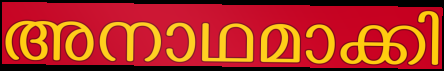
അനാഥമാക്കി